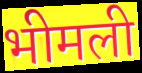
भीमली